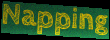
Napping